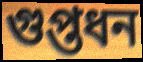
গুপ্তধন